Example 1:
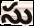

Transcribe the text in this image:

సు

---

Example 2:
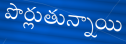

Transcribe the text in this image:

పొర్లుతున్నాయి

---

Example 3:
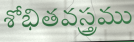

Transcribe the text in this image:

శోభితవస్త్రము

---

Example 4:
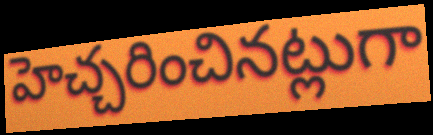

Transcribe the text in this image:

హెచ్చరించినట్లుగా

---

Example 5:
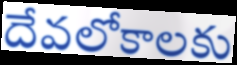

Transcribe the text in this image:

దేవలోకాలకు